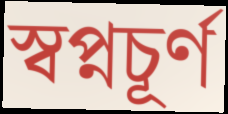
স্বপ্নচূর্ণ